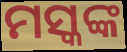
ମସ୍କଙ୍କ